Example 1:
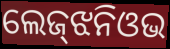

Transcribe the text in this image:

ଲେଜ୍‌ଝନିଓଭ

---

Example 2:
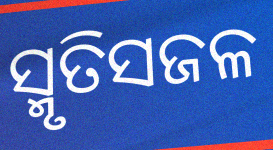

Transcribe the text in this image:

ସ୍ମୃତିସଜଳ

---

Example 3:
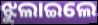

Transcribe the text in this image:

ଝୁଲାଇଲେ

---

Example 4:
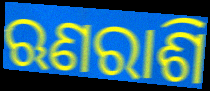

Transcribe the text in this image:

ଋଣରାଶି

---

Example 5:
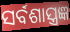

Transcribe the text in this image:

ସର୍ବଶାସ୍ତ୍ରଜ୍ଞ